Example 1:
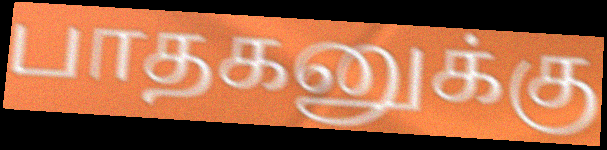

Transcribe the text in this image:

பாதகனுக்கு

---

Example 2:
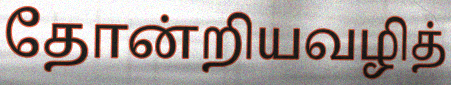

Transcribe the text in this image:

தோன்றியவழித்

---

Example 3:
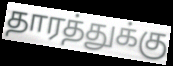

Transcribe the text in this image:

தாரத்துக்கு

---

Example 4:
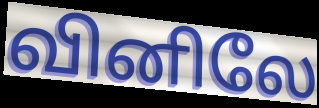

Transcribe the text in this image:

வினிலே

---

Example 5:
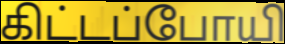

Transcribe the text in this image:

கிட்டப்போயி